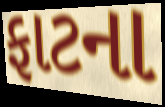
ફાટના